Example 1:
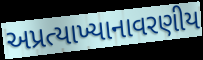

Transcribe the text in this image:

અપ્રત્યાખ્યાનાવરણીય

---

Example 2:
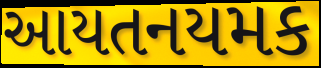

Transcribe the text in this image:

આયતનયમક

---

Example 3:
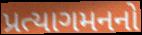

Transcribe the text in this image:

પ્રત્યાગમનનો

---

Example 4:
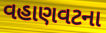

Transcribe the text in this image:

વહાણવટના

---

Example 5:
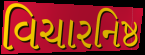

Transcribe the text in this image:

વિચારનિષ્ઠ